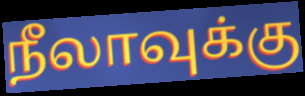
நீலாவுக்கு